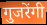
गुजरेंगी